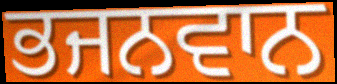
ਭਜਨਵਾਨ